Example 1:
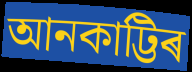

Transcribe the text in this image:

আনকাট্টিৰ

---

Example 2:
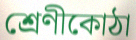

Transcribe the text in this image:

শ্ৰেণীকোঠা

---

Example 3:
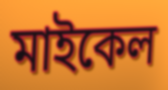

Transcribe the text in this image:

মাইকেল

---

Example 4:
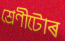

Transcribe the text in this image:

শ্ৰেণীটোৰ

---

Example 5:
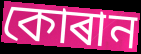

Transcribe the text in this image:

কোৰান